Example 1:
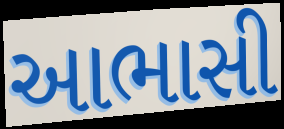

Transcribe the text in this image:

આભાસી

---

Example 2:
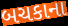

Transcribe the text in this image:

બચકાના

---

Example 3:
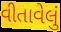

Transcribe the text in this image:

વીતાવેલું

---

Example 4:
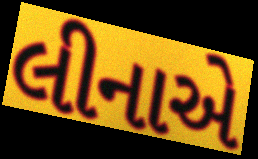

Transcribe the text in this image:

લીનાએ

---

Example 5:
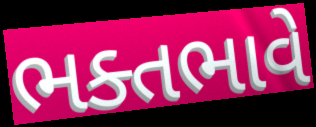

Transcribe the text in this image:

ભક્તભાવે